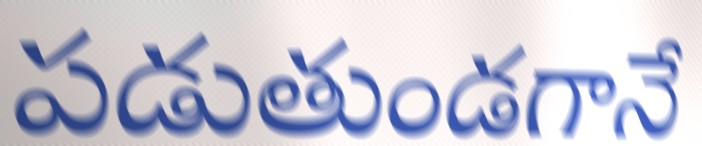
పడుతుండగానే